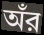
অঁর